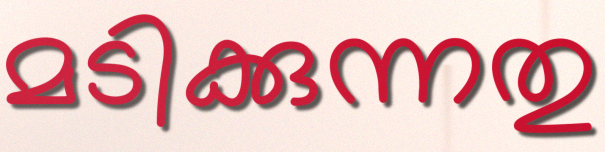
മടിക്കുന്നതു